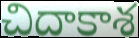
చిదాకాశ